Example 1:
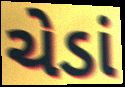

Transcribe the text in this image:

ચેડાં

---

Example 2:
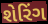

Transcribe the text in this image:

શેરિંગ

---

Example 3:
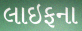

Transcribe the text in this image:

લાઇફના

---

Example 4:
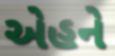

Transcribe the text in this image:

એહને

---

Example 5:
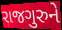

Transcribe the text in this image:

રાજગુરુને